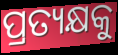
ପ୍ରତ୍ୟକ୍ଷକୁ